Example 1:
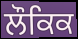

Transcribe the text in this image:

ਲੌਕਿਕ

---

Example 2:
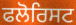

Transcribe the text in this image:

ਫਲੋਰਿਸਟ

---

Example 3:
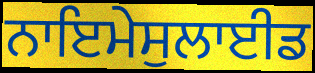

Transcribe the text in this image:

ਨਾਇਮੇਸੁਲਾਈਡ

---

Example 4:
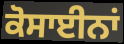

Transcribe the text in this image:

ਕੋਸਾਈਨਾਂ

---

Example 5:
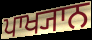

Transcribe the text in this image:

ਪਾਖ੍ਯਾਨ